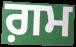
ਗ਼ਮ